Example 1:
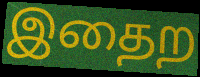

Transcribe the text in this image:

இதைற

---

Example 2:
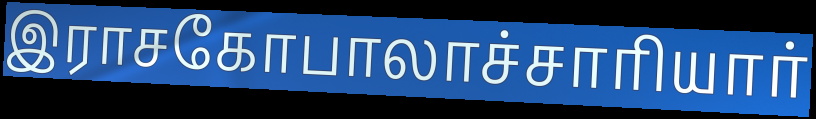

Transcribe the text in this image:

இராசகோபாலாச்சாரியார்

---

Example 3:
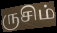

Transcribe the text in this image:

ருசிம்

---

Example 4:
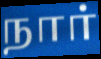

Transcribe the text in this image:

நார்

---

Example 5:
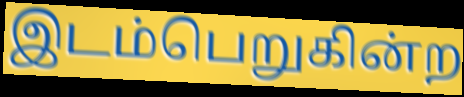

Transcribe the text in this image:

இடம்பெறுகின்ற